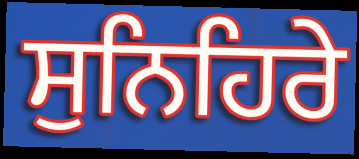
ਸੁਨਿਹਿਰੇ